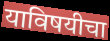
याविषयीचा